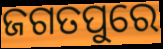
ଜଗତପୁରେ